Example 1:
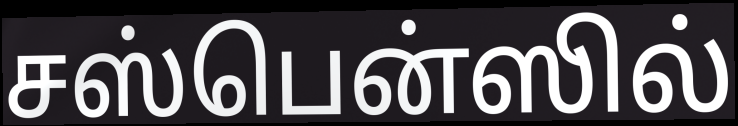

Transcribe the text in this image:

சஸ்பென்ஸில்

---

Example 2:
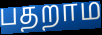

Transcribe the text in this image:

பதறாம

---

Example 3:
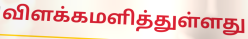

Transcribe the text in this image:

விளக்கமளித்துள்ளது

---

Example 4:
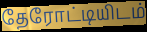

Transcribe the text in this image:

தேரோட்டியிடம்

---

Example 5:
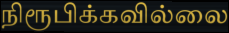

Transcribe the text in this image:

நிரூபிக்கவில்லை